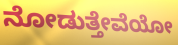
ನೋಡುತ್ತೇವೆಯೋ